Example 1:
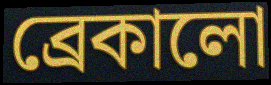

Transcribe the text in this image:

ব্রেকালো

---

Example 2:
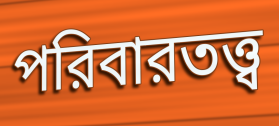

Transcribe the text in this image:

পরিবারতত্ত্ব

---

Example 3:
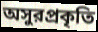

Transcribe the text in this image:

অসুরপ্রকৃতি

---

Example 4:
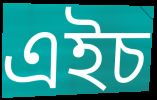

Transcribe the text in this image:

এইচ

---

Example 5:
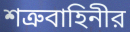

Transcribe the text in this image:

শত্রুবাহিনীর